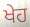
ਖੇਹ